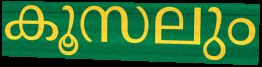
കൂസലും